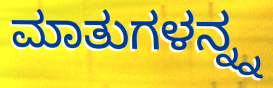
ಮಾತುಗಳನ್ನ್ನ